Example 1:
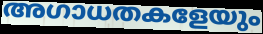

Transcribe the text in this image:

അഗാധതകളേയും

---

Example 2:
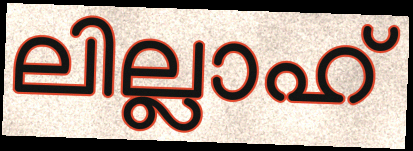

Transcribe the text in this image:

ലില്ലാഹ്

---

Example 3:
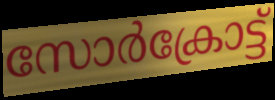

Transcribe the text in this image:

സോർക്രോട്ട്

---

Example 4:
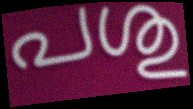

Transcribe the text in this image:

പശു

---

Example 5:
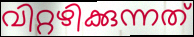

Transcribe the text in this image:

വിറ്റഴിക്കുന്നത്